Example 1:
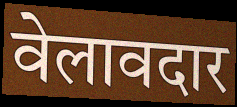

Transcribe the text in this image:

वेलावदार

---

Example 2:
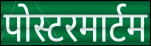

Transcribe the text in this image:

पोस्टरमार्टम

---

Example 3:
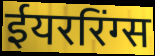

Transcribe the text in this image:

ईयररिंग्स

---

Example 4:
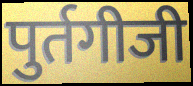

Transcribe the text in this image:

पुर्तगीजी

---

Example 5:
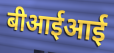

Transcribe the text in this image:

बीआईआई